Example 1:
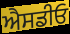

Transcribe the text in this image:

ਐਸਡੀਓ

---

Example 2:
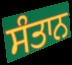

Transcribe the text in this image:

ਸੰਤਾਨ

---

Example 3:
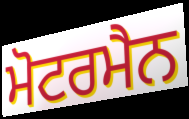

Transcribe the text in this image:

ਮੋਟਰਮੈਨ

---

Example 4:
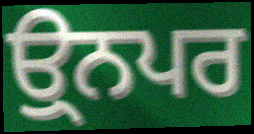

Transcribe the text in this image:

ਉ੍ਨਪਰ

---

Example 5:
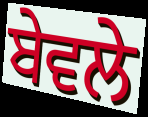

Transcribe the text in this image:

ਬੇਵਲੇ